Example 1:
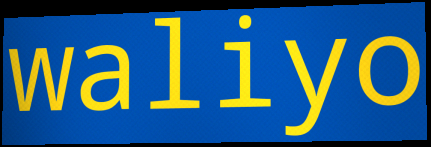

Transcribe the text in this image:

waliyo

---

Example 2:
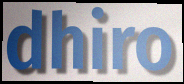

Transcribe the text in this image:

dhiro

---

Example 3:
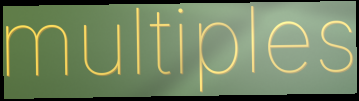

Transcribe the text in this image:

multiples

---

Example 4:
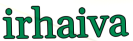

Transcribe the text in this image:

irhaiva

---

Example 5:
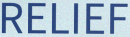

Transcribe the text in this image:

RELIEF